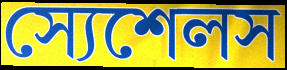
স্যেশেলস